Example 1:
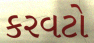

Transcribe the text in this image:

કરવટો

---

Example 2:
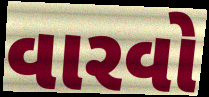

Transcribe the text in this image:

વારવો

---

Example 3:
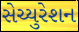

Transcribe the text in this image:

સેચ્યુરેશન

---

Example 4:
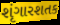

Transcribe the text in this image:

શૃંગારશતક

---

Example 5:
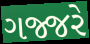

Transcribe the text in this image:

ગજ્જરે